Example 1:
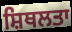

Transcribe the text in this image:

ਸ਼ਿਥਲਤਾ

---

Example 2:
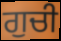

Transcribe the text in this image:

ਗੁਚੀ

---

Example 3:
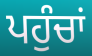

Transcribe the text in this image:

ਪਹੁੰਚਾਂ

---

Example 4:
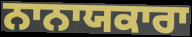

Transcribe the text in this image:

ਨਾਨਾਯਕਾਰਾ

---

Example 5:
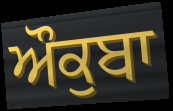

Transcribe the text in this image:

ਔਕੁਬਾ